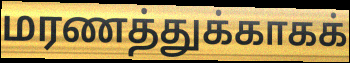
மரணத்துக்காகக்